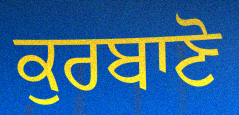
ਕੁਰਬਾਣੋ